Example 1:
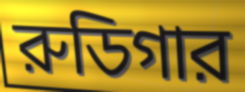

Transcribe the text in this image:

রুডিগার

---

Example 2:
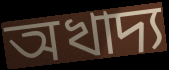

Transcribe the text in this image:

অখাদ্য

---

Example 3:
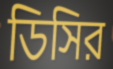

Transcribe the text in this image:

ডিসির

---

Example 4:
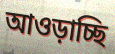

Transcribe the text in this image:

আওড়াচ্ছি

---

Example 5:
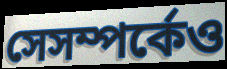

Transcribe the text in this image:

সেসম্পর্কেও